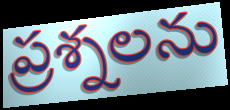
ప్రశ్నలను